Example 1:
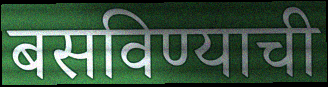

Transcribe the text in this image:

बसविण्याची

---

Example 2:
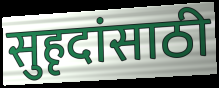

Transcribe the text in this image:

सुहृदांसाठी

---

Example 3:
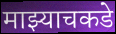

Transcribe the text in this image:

माझ्याचकडे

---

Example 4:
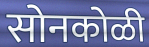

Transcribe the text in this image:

सोनकोळी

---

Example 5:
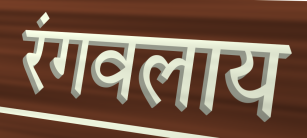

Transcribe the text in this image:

रंगवलाय